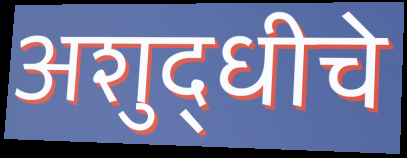
अशुद्धीचे